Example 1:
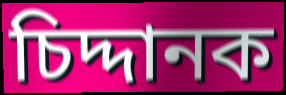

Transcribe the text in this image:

চিদ্দানক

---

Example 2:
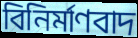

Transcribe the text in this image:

বিনিৰ্মাণবাদ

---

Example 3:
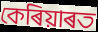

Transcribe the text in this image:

কেৰিয়াৰত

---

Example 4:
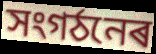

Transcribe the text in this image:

সংগঠনেৰ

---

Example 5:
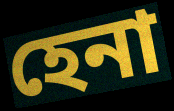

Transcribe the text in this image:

হেনা